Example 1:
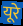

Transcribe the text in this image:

यूरे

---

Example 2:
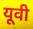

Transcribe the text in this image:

यूवी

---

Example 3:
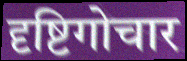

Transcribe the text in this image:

दृष्टिगोचार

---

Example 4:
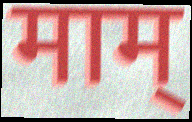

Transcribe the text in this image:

माम्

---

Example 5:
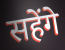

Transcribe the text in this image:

सहेंगे